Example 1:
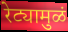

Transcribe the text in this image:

रेट्यामुळं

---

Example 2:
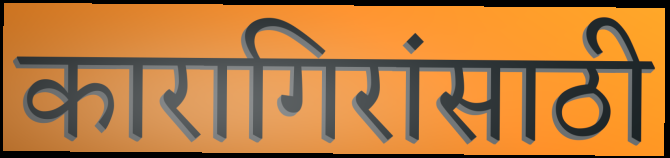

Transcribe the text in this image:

कारागिरांसाठी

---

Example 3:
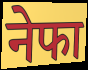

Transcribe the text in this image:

नेफा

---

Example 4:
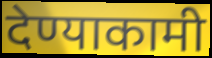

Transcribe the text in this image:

देण्याकामी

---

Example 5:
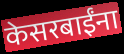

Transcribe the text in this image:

केसरबाईंना